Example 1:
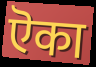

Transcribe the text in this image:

ऎका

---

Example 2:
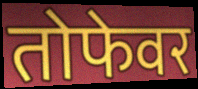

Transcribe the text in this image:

तोफेवर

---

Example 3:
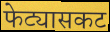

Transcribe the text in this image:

फेट्यासकट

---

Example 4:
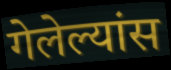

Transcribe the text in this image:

गेलेल्यांस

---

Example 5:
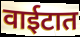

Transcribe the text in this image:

वाईटात